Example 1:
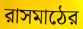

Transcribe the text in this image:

রাসমাঠের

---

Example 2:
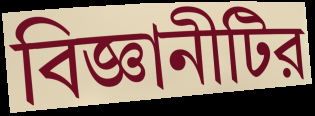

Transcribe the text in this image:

বিজ্ঞানীটির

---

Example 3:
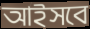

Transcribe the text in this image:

আইসবে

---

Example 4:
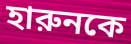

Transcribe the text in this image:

হারুনকে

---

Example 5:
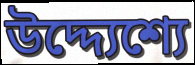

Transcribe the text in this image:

উদ্দ্যেশ্যে